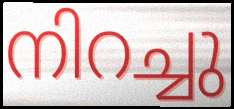
നിറച്ചു